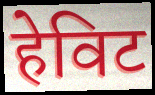
हेविट